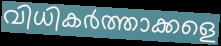
വിധികർത്താക്കളെ